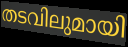
തടവിലുമായി